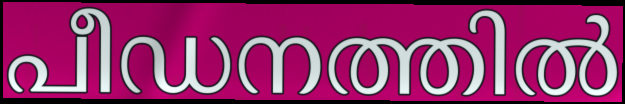
പീഡനത്തിൽ